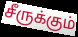
சீருக்கும்